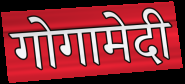
गोगामेदी